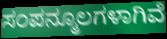
ಸಂಪನ್ಮೂಲಗಳಾಗಿವೆ